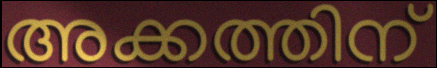
അക്കത്തിന്